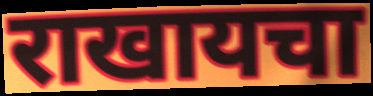
राखायचा